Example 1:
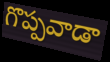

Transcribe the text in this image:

గొప్పవాడా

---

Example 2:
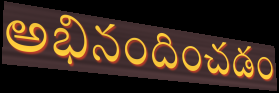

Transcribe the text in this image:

అభినందించడం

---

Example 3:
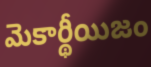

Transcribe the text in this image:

మెకార్థీయిజం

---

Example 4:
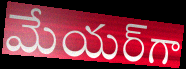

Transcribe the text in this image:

మేయర్‌గా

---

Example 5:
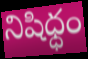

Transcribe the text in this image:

నిషిధ్ధం